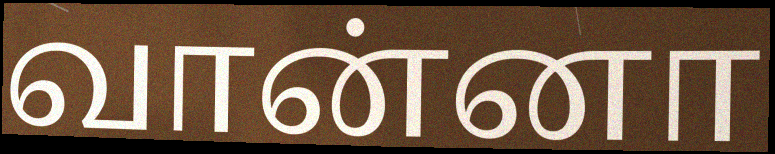
வான்னா